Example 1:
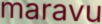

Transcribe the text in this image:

maravu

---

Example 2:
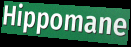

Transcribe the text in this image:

Hippomane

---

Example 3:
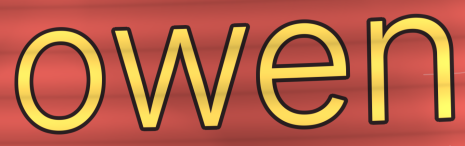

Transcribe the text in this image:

owen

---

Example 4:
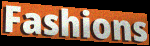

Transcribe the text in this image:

Fashions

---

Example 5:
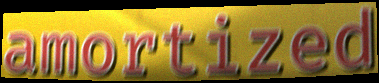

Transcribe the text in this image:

amortized